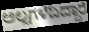
ಅಲ್ಲಗಳೆದಿದ್ದಾರೆ